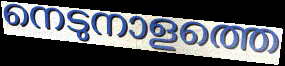
നെടുനാളത്തെ